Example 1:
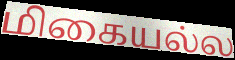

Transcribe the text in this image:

மிகையல்ல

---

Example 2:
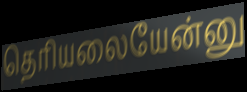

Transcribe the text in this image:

தெரியலையேன்னு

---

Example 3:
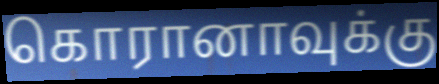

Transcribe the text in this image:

கொரானாவுக்கு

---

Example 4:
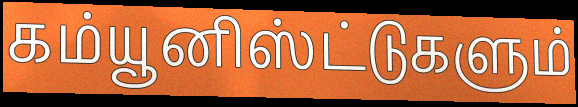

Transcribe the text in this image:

கம்யூனிஸ்ட்டுகளும்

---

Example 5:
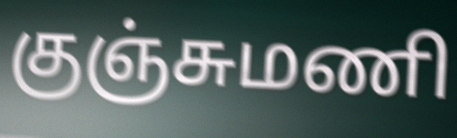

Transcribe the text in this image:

குஞ்சுமணி